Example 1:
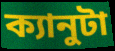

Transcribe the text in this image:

ক্যানুটা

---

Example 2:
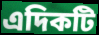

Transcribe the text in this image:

এদিকটি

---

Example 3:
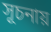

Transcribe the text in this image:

সূচনায়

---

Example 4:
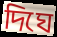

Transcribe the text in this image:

দিঘে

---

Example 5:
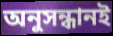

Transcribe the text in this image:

অনুসন্ধানই